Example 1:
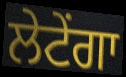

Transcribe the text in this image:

ਲੇਟੇਂਗਾ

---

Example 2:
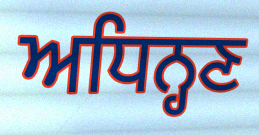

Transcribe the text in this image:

ਅਧਿਨ੍ਹਣ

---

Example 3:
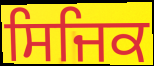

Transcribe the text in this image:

ਸਿਜਿਕ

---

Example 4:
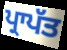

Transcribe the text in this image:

ਪ੍ਰਾਪੱਤ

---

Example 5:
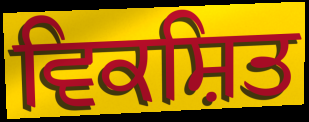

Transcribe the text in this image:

ਵਿਕਸ਼ਿਤ